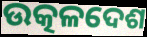
ଉତ୍କଳଦେଶ